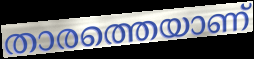
താരത്തെയാണ്